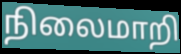
நிலைமாறி